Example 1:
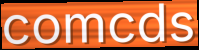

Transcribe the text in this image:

comcds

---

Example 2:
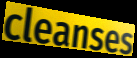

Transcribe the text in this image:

cleanses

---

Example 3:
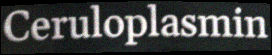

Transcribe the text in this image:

Ceruloplasmin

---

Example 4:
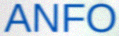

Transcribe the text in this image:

ANFO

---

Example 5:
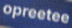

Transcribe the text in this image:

opreetee